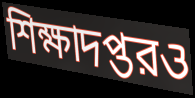
শিক্ষাদপ্তরও